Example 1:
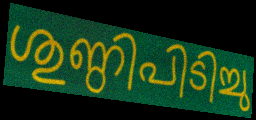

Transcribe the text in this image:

ശുണ്ഠിപിടിച്ചു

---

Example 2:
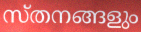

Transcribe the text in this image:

സ്തനങ്ങളും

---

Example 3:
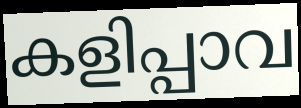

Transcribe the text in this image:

കളിപ്പാവ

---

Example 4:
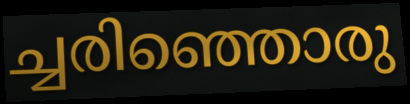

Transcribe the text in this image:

ച്ചരിഞ്ഞൊരു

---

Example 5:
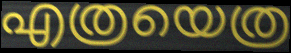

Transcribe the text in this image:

എത്രയെത്ര